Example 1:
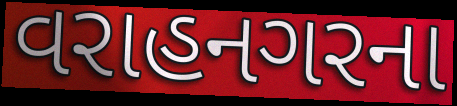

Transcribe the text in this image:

વરાહનગરના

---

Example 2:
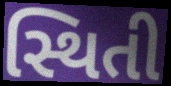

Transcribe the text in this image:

સ્થિતી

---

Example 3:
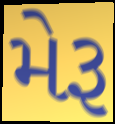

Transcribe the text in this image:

મેરૂ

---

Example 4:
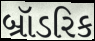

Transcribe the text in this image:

બ્રૉડરિક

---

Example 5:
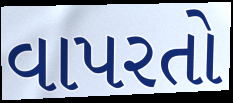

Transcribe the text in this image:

વાપરતો